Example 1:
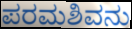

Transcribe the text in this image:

ಪರಮಶಿವನು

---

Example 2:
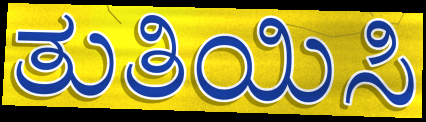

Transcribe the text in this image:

ತುತಿಯಿಸಿ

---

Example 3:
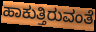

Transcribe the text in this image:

ಹಾಕುತ್ತಿರುವಂತೆ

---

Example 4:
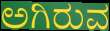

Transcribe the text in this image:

ಅಗಿರುವ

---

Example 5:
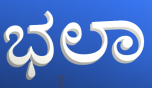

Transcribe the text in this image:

ಭಲಾ